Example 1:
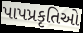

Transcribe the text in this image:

પાપપ્રકૃતિઓ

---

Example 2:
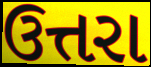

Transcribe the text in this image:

ઉત્તરા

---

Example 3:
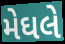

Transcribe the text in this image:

મેઘલે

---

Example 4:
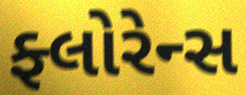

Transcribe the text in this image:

ફ્લોરેન્સ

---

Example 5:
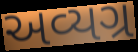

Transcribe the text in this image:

અવ્યગ્ર